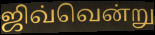
ஜிவ்வென்று